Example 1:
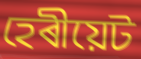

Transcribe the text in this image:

হেৰীয়েট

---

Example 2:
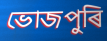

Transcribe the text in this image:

ভোজপুৰি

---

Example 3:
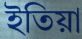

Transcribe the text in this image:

ইতিয়া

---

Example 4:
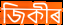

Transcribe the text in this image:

জিকীৰ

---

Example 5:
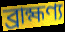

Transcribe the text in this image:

ব্ৰাহ্মণ্য